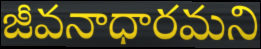
జీవనాధారమని